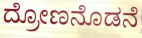
ದ್ರೋಣನೊಡನೆ